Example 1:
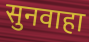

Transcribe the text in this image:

सुनवाहा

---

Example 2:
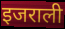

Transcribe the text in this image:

इजराली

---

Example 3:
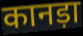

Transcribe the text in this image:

कानड़ा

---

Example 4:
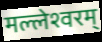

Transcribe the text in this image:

मल्लेश्वरम्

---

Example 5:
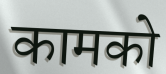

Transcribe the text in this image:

कामको